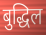
बुद्धिल